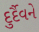
દુર્દૈવને